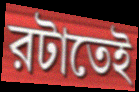
রটাতেই